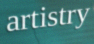
artistry